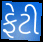
ફેટી